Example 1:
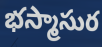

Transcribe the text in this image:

భస్మాసుర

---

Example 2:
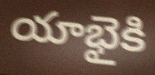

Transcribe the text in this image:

యాభైకి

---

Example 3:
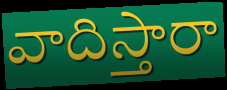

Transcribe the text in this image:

వాదిస్తారా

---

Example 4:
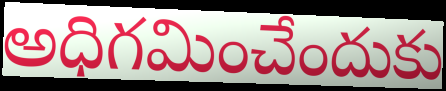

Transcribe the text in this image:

అధిగమించేందుకు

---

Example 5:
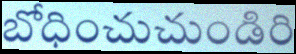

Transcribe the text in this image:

బోధించుచుండిరి